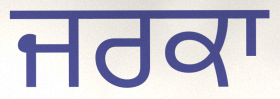
ਜਰਕਾ